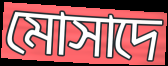
মোসাদে